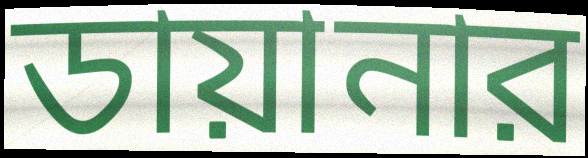
ডায়ানার